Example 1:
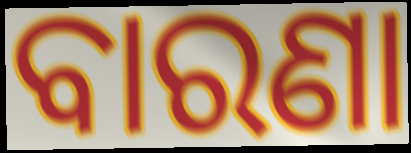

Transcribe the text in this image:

ବାରଣା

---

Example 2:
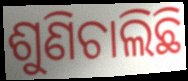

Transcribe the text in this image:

ଶୁଣିଚାଲିଛି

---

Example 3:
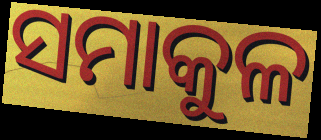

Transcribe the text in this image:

ସମାକୁଳ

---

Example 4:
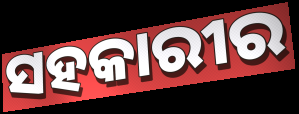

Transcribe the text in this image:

ସହକାରୀର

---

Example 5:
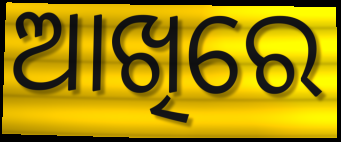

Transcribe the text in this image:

ଆଖିରେ